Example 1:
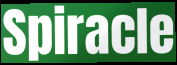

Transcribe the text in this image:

Spiracle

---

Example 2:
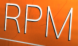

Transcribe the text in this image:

RPM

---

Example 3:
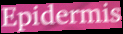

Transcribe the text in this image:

Epidermis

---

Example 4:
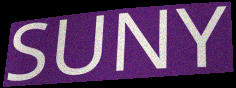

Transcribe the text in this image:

SUNY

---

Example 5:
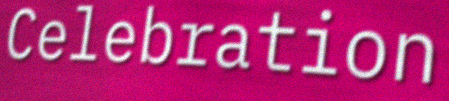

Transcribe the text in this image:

Celebration